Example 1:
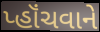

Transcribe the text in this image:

પ્હૉંચવાને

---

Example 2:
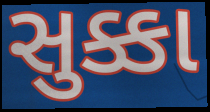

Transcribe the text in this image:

સુક્કા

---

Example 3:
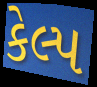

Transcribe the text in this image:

કેલ્પ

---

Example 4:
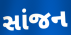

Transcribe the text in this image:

સાંજન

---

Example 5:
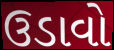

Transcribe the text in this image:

ઉડાવો